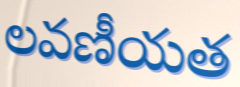
లవణీయత